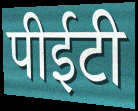
पीईटी